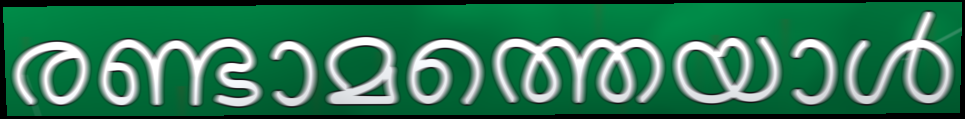
രണ്ടാമത്തെയാൾ